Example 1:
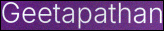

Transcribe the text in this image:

Geetapathan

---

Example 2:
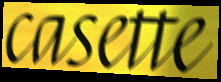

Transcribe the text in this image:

casette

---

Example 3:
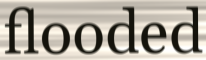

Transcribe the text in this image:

flooded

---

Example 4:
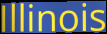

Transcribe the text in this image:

Illinois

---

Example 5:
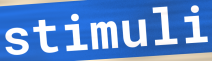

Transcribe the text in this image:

stimuli